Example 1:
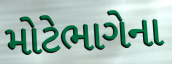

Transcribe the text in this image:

મોટેભાગેના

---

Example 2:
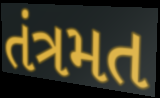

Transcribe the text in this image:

તંત્રમત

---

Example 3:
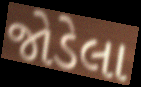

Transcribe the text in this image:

જોડેલા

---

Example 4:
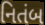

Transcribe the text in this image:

નિતંબ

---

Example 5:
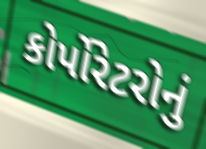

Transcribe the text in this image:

કોર્પોરેટરોનું